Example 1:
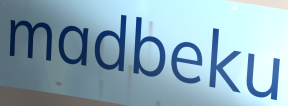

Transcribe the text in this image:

madbeku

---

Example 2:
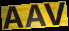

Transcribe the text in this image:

AAV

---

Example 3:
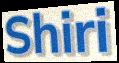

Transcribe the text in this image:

Shiri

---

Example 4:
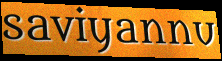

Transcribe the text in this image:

saviyannu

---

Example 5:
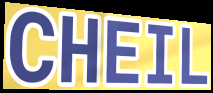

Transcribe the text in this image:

CHEIL